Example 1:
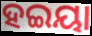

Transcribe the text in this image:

ହଇୟା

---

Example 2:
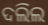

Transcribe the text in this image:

ଦଲିଲ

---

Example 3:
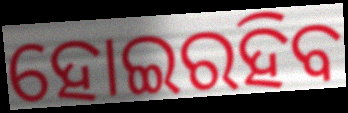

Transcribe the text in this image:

ହୋଇରହିବ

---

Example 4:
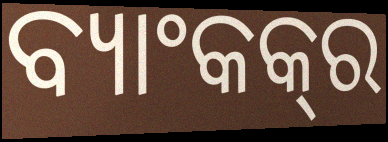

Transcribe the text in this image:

ବ୍ୟାଂକକ୍‍ର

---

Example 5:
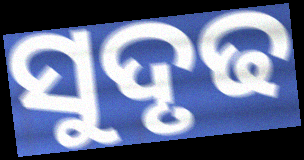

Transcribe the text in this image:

ସୁଦୃଢ